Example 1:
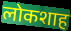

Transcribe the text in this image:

लोकशाह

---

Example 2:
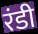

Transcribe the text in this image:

रंडी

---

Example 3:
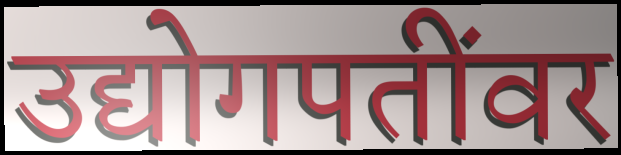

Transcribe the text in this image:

उद्योगपतींवर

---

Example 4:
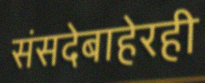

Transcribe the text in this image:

संसदेबाहेरही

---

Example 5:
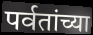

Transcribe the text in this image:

पर्वतांच्या